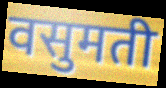
वसुमती